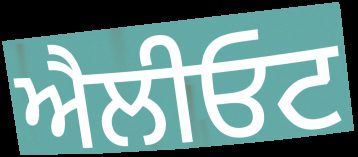
ਐਲੀਓਟ